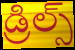
డ్రిల్స్